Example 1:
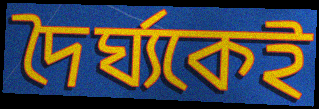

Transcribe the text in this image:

দৈর্ঘ্যকেই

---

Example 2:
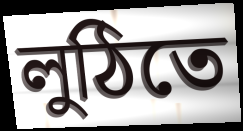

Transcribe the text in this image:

লুঠিতে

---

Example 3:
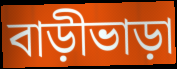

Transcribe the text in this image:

বাড়ীভাড়া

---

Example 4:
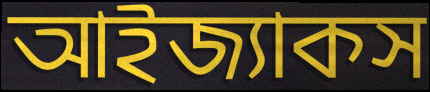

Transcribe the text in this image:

আইজ্যাকস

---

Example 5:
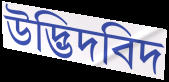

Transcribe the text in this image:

উদ্ভিদবিদ